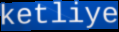
ketliye